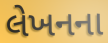
લેખનના